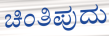
ಚಿಂತಿಪುದು